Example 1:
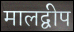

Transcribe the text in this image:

मालद्वीप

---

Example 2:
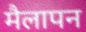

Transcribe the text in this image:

मैलापन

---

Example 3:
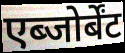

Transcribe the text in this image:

एब्जोर्बेंट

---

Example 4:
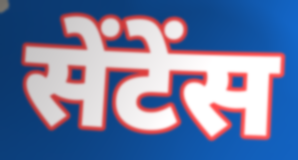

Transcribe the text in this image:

सेंटेंस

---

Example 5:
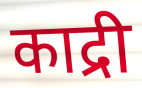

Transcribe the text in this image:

काद्री